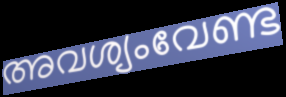
അവശ്യംവേണ്ട